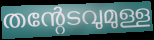
തന്റേടവുമുള്ള